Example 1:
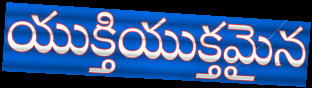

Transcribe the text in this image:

యుక్తియుక్తమైన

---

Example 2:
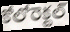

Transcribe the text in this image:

కోలోరెక్టల్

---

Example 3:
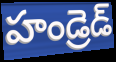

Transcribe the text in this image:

హండ్రెడ్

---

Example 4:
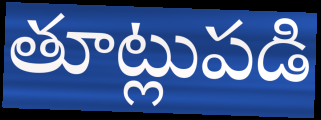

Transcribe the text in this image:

తూట్లుపడి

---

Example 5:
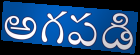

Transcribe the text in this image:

అగపడి